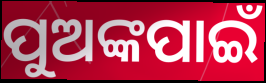
ପୁଅଙ୍କପାଇଁ